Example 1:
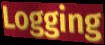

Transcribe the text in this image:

Logging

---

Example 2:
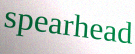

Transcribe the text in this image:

spearhead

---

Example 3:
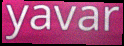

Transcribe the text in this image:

yavar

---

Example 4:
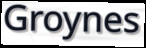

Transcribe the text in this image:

Groynes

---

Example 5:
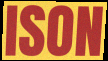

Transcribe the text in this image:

ISON